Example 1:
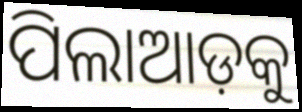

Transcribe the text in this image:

ପିଲାଆଡ଼କୁ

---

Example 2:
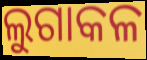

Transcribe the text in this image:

ଲୁଗାକଳ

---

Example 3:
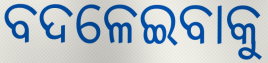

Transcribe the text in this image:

ବଦଳେଇବାକୁ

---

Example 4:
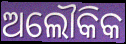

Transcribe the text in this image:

ଅଲୌକିକ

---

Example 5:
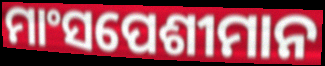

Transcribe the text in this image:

ମାଂସପେଶୀମାନ